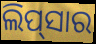
ଲିପ୍‌ସାର